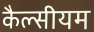
कैल्सीयम